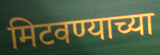
मिटवण्याच्या